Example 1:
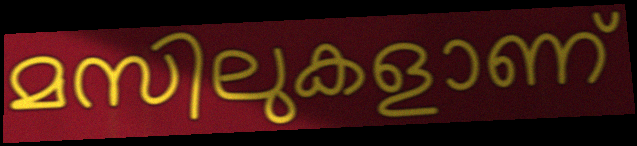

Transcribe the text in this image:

മസിലുകളാണ്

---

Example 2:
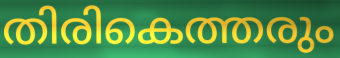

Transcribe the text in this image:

തിരികെത്തരും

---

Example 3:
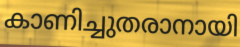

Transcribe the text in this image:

കാണിച്ചുതരാനായി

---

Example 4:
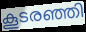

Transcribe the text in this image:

കൂടരഞ്ഞി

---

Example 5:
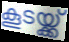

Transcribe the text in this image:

കൂടയ്ക്ക്